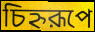
চিহ্নরূপে